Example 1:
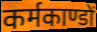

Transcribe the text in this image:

कर्मकाण्डों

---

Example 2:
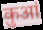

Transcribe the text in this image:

कुआं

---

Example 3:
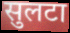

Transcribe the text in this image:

सुलटा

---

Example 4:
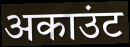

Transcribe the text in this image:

अकाउंट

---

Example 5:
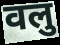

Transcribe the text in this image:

वलु